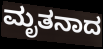
ಮೃತನಾದ